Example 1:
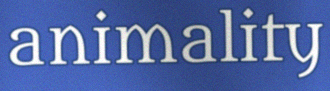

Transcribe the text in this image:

animality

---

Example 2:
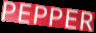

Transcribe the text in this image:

PEPPER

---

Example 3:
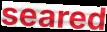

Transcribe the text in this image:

seared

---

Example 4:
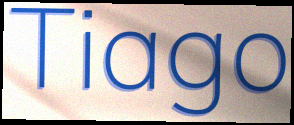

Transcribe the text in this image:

Tiago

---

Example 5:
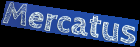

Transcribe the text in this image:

Mercatus